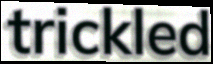
trickled